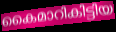
കൈമാറികിട്ടിയ